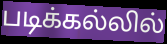
படிக்கல்லில்